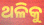
ଥଳିକୁ